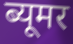
ब्यूमर